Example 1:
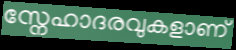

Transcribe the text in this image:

സ്നേഹാദരവുകളാണ്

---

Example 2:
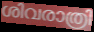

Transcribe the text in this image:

ശിവരാത്രി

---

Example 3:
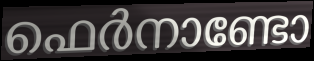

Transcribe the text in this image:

ഫെർനാണ്ടോ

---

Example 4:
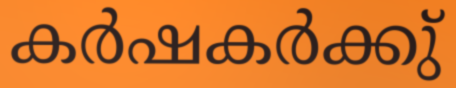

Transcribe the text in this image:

കർഷകർക്കു്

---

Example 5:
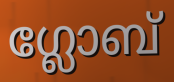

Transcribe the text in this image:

ഗ്ലോബ്